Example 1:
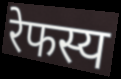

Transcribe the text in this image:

रेफस्य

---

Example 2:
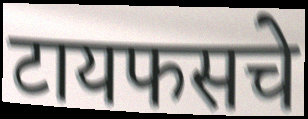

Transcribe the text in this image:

टायफसचे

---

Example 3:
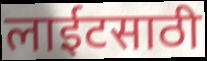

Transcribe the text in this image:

लाईटसाठी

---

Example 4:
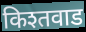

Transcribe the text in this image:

किश्तवाड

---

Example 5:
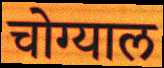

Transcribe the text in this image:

चोग्याल